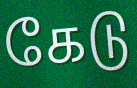
கேடு